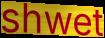
shwet